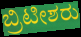
ಬ್ರಿಟೀಶರು